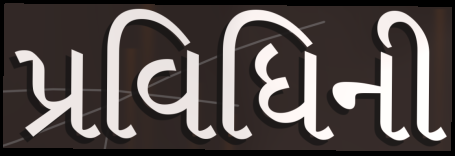
પ્રવિધિની